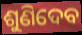
ଶୁଣିଦେବ